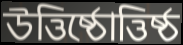
উত্তিষ্ঠোত্তিষ্ঠ